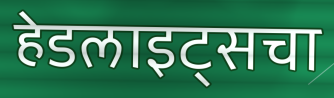
हेडलाइट्सचा